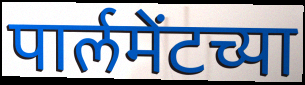
पार्लमेंटच्या